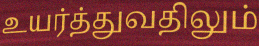
உயர்த்துவதிலும்